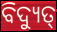
ବିଦ୍ୟୁତ୍